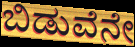
ಬಿಡುವೆನೇ